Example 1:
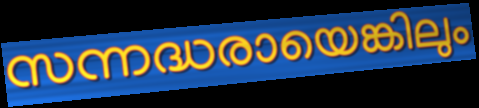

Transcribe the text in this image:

സന്നദ്ധരായെങ്കിലും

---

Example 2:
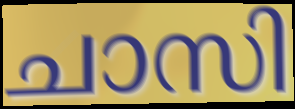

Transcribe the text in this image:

ചാസി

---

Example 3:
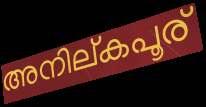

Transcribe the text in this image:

അനില്കപൂര്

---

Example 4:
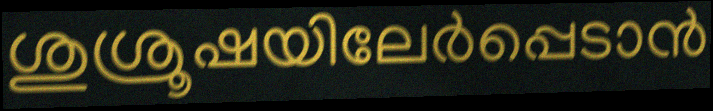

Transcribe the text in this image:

ശുശ്രൂഷയിലേർപ്പെടാൻ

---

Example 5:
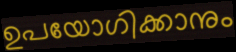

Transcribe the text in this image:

ഉപയോഗിക്കാനും